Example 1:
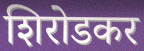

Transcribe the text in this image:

शिरोडकर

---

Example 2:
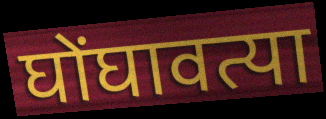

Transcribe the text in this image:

घोंघावत्या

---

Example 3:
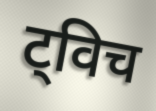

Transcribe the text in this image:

ट्विच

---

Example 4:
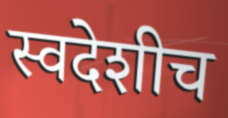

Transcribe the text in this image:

स्वदेशीच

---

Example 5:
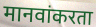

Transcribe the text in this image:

मानवांकरता